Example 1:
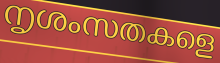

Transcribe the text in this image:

നൃശംസതകളെ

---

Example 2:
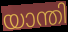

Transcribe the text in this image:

യാന്തി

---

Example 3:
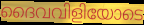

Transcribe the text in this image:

ദൈവവിളിയോടെ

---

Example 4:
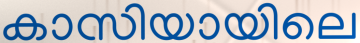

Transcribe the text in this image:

കാസിയായിലെ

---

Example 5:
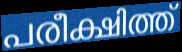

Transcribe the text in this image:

പരീക്ഷിത്ത്